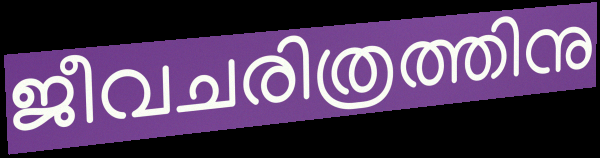
ജീവചരിത്രത്തിനു